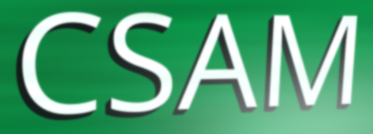
CSAM